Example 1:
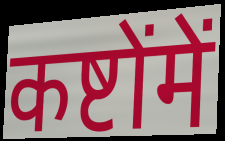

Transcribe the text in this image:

कष्टोंमें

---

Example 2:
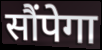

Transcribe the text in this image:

सौंपेगा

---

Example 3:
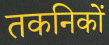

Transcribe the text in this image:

तकनिकों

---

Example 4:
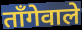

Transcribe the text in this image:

ताँगेवाले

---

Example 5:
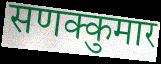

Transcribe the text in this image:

सणक्कुमार